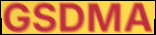
GSDMA